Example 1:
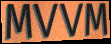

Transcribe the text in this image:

MVVM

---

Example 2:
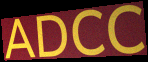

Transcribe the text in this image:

ADCC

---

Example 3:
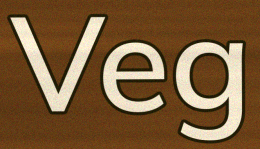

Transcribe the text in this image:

Veg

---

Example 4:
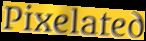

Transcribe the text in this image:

Pixelated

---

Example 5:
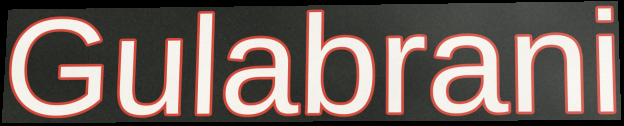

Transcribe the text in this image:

Gulabrani